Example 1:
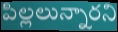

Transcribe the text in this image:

పిల్లలున్నారని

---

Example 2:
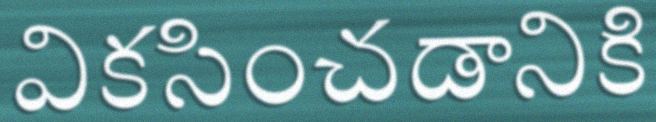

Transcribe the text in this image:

వికసించడానికి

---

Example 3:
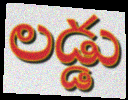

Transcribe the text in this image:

లడ్డు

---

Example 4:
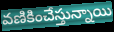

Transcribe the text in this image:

వణికించేస్తున్నాయి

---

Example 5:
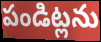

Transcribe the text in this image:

పండిట్లను